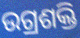
ଉଗ୍ରଶକ୍ତି